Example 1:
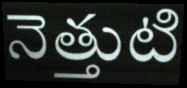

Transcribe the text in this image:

నెత్తుటి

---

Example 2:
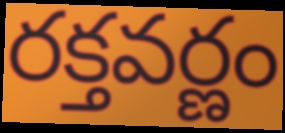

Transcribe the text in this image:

రక్తవర్ణం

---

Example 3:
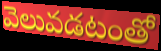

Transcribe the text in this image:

వెలువడటంతో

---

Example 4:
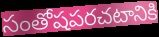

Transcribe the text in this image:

సంతోషపరచటానికి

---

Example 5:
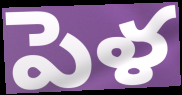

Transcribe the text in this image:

పెళ